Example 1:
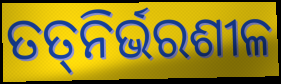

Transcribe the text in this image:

ତତ୍‍ନିର୍ଭରଶୀଳ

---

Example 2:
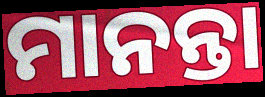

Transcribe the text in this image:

ମାନନ୍ତା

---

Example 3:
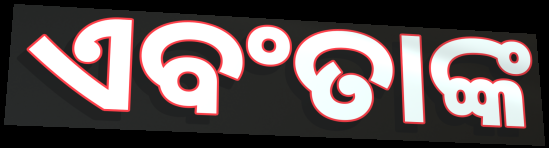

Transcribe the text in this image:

ଏବଂତାଙ୍କ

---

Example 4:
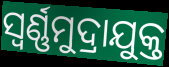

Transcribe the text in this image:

ସ୍ବର୍ଣ୍ଣମୁଦ୍ରାଯୁକ୍ତ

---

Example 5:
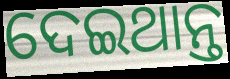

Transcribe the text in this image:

ଦେଇଥାନ୍ତ